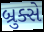
બ્રુક્સે